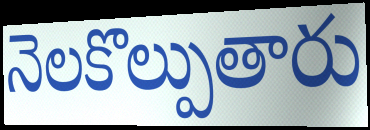
నెలకొల్పుతారు